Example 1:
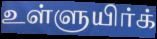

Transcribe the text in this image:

உள்ளுயிர்க்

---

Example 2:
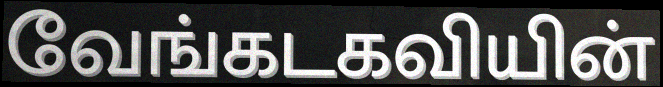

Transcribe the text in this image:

வேங்கடகவியின்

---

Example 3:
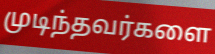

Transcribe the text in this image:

முடிந்தவர்களை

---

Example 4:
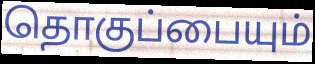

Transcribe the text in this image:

தொகுப்பையும்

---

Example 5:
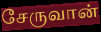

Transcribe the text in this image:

சேருவான்